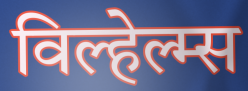
विल्हेल्म्स